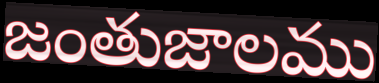
జంతుజాలము